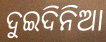
ଦୁଇଦିନିଆ